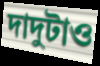
দাদুটাও